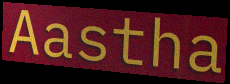
Aastha